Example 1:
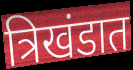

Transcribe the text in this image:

त्रिखंडात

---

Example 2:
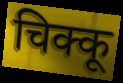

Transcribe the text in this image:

चिक्कू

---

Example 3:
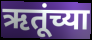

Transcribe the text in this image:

ऋतूंच्या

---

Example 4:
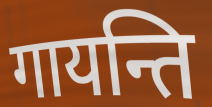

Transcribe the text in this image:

गायन्ति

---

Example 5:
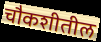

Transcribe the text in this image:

चौकशीतील